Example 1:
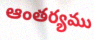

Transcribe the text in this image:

ఆంతర్యము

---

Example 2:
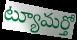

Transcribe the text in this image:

ట్యూమర్తో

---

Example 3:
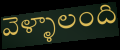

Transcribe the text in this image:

వెళ్ళాలంది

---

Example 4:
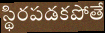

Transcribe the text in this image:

స్థిరపడకపోతే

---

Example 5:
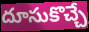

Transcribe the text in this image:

దూసుకొచ్చే